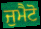
ਜੁਮੈਟੋ